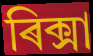
ৰিক্সা